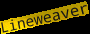
Lineweaver